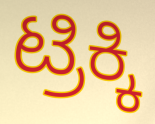
ಟ್ರಿಕ್ಕಿ